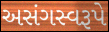
અસંગસ્વરૂપે